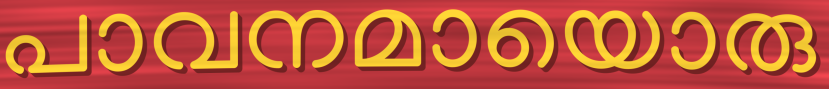
പാവനമായൊരു